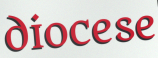
diocese